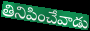
తినిపించేవాడు